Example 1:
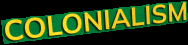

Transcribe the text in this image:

COLONIALISM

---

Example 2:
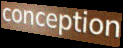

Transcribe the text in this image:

conception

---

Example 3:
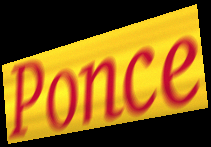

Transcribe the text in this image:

Ponce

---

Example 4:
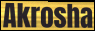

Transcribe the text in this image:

Akrosha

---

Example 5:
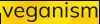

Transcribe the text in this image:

veganism